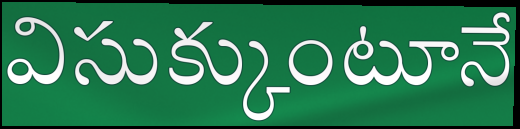
విసుక్కుంటూనే